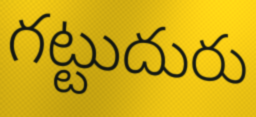
గట్టుదురు